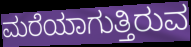
ಮರೆಯಾಗುತ್ತಿರುವ